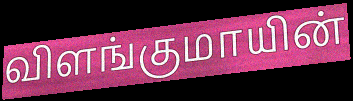
விளங்குமாயின்